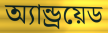
অ্যান্ড্রয়েড